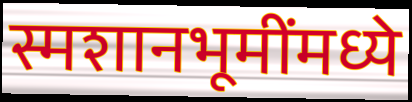
स्मशानभूमींमध्ये